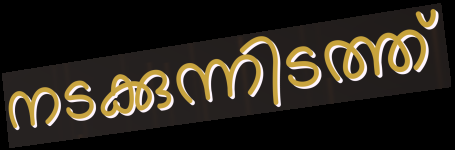
നടക്കുന്നിടത്ത്